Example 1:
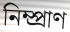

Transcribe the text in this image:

নিম্প্রাণ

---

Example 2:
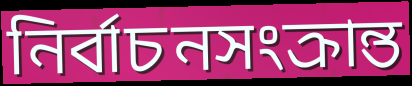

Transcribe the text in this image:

নির্বাচনসংক্রান্ত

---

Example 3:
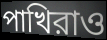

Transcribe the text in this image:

পাখিরাও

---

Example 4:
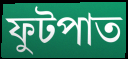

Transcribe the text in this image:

ফুটপাত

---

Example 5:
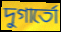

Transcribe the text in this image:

দুগার্তো